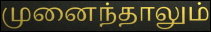
முனைந்தாலும்